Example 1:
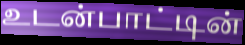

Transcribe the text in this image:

உடன்பாட்டின்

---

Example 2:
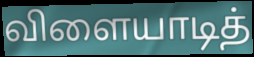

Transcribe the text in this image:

விளையாடித்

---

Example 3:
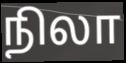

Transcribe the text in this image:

நிலா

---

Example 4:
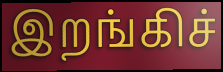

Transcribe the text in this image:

இறங்கிச்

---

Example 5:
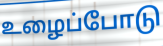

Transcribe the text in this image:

உழைப்போடு